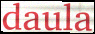
daula